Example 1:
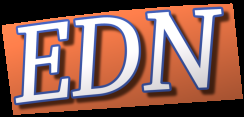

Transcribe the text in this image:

EDN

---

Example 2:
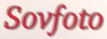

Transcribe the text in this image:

Sovfoto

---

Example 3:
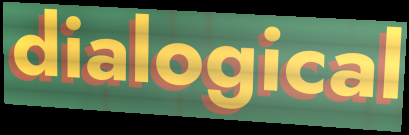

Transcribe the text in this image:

dialogical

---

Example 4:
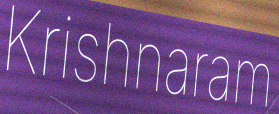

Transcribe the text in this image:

Krishnaram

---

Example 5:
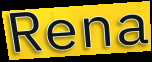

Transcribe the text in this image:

Rena